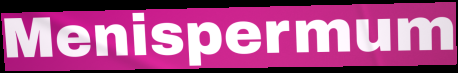
Menispermum